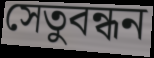
সেতুবন্ধন